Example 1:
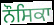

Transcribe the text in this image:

ਨੌਸਿਕਾ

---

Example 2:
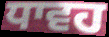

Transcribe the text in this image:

ਧਾਵਹ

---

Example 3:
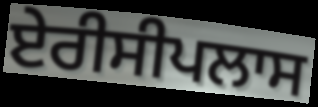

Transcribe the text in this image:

ਏਰੀਸੀਪਲਾਸ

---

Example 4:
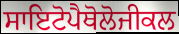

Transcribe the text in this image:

ਸਾਇਟੋਪੈਥੋਲੋਜੀਕਲ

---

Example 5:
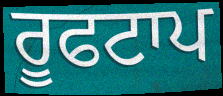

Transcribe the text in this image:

ਰੂਫਟਾਪ